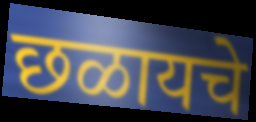
छळायचे